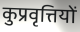
कुप्रवृत्तियों